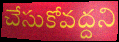
చేసుకోవద్దని